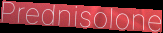
Prednisolone